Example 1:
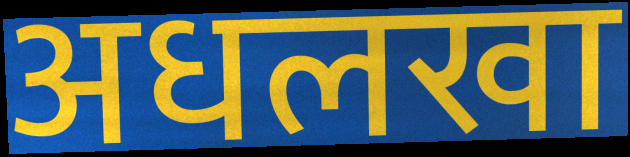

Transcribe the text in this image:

अधलखा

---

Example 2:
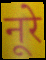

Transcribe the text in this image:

नूरे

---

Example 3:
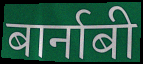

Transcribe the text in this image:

बार्नाबी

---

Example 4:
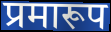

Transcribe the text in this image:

प्रमारूप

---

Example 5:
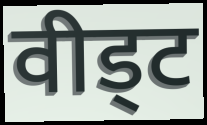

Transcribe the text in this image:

वीड्ट